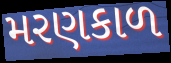
મરણકાળ